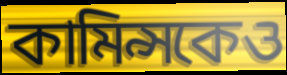
কামিন্সকেও